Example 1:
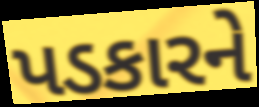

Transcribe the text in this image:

પડકારને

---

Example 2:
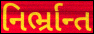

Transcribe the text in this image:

નિર્ભ્રાન્ત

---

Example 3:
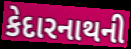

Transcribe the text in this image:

કેદારનાથની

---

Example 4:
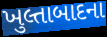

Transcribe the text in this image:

ખુલ્તાબાદના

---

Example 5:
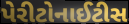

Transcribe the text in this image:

પેરીટોનાઈટીસ